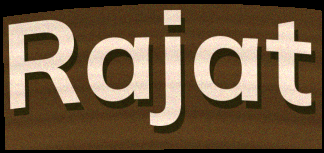
Rajat